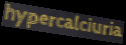
hypercalciuria